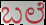
ಬಲೆ